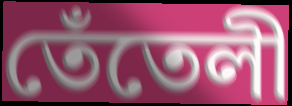
তেঁতেলী